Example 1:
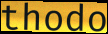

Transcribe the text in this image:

thodo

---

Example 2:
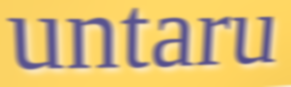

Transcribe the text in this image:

untaru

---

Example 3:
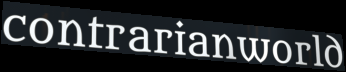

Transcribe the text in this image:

contrarianworld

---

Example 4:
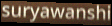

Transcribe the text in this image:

suryawanshi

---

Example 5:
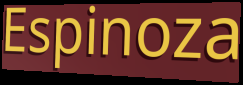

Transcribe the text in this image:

Espinoza